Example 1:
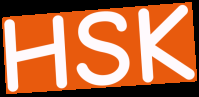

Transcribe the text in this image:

HSK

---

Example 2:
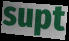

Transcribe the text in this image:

supt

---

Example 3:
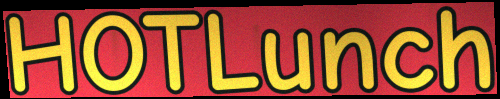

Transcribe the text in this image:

HOTLunch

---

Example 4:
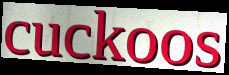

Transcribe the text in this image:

cuckoos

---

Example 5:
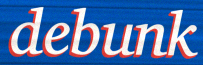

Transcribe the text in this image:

debunk